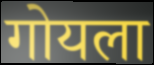
गोयला